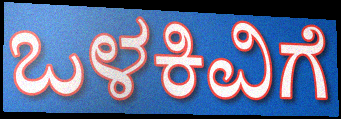
ಒಳಕಿವಿಗೆ